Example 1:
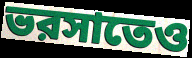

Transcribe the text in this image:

ভরসাতেও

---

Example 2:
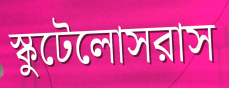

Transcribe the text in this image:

স্কুটেলোসরাস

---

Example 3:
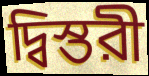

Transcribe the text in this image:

দ্বিস্তরী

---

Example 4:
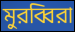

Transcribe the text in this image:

মুরব্বিরা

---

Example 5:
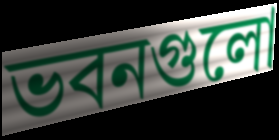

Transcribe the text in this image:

ভবনগুলো